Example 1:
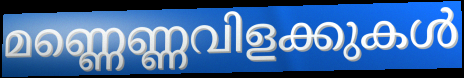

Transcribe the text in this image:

മണ്ണെണ്ണവിളക്കുകൾ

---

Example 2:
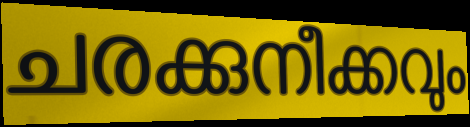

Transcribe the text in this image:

ചരക്കുനീക്കവും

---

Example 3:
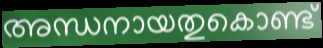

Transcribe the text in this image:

അന്ധനായതുകൊണ്ട്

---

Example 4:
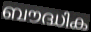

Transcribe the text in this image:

ബൗദ്ധിക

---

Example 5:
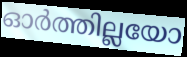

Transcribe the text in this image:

ഓർത്തില്ലയോ